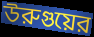
উরুগুয়ের